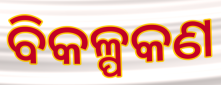
ବିକଳ୍ପକଣ